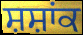
ਸ਼ਸ਼ਾਂਕ